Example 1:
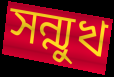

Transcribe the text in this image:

সন্মুখ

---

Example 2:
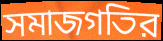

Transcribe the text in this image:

সমাজগতির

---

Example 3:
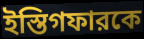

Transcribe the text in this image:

ইস্তিগফারকে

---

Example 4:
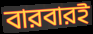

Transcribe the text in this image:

বারবারই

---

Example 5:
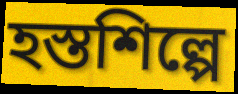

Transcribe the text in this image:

হস্তশিল্পে